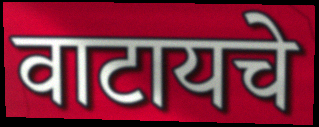
वाटायचे